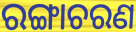
ରଙ୍ଗାଚରଣ